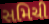
સમિચી